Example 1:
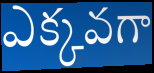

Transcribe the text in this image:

ఎక్కవగా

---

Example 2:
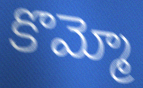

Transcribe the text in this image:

కొమ్మో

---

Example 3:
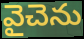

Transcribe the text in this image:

వైచెను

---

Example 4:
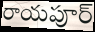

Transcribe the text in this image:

రాయపూర్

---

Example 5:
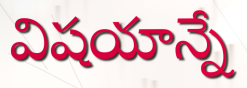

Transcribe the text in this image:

విషయాన్నే